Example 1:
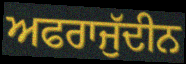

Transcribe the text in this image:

ਅਫਰਾਜੁੱਦੀਨ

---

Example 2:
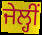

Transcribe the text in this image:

ਜੇਲ੍ਹੀਂ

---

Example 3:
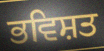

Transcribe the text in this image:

ਭਵਿਸ਼ਤ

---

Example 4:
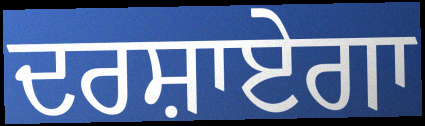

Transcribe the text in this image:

ਦਰਸ਼ਾਏਗਾ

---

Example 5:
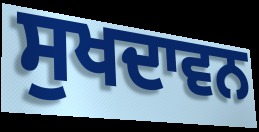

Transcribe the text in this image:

ਸੁਖਦਾਵਨ